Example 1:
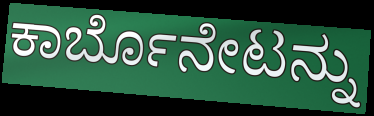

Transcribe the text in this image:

ಕಾರ್ಬೊನೇಟನ್ನು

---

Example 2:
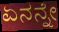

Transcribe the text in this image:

ಏನನ್ನೇ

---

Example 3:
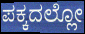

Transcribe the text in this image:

ಪಕ್ಕದಲ್ಲೋ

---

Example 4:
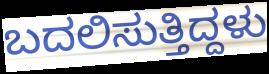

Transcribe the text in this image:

ಬದಲಿಸುತ್ತಿದ್ದಳು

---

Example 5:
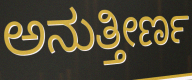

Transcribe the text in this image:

ಅನುತ್ತೀರ್ಣ